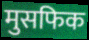
मुसफिक